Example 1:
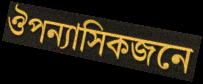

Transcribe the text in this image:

ঔপন্যাসিকজনে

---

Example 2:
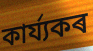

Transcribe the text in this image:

কাৰ্য্যকৰ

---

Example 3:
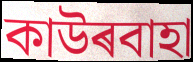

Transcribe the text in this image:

কাউৰবাহা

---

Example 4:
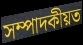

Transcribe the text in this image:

সম্পাদকীয়ত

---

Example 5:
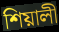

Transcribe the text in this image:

শিয়ালী